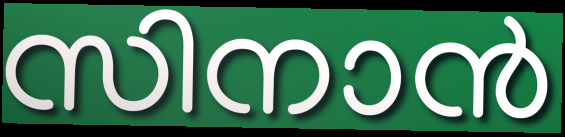
സിനാൻ